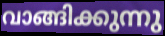
വാങ്ങിക്കുന്നു